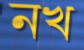
নখ